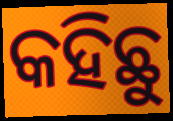
କହିଛୁ